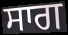
ਸਾਗ